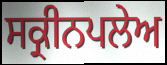
ਸਕ੍ਰੀਨਪਲੇਅ